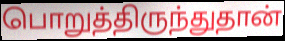
பொறுத்திருந்துதான்